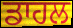
ਡਾਹਲ